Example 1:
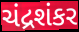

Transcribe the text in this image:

ચંદ્રશંકર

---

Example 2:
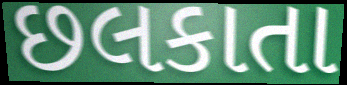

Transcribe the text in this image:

છલકાતા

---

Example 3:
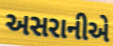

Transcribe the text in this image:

અસરાનીએ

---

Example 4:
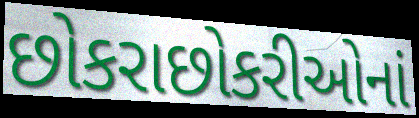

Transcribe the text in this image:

છોકરાછોકરીઓનાં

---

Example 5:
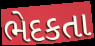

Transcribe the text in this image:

ભેદકતા